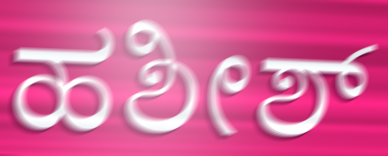
ಹಶೀಶ್